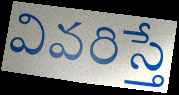
వివరిస్తే